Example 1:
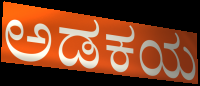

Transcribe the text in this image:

ಅಡಕಯ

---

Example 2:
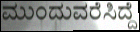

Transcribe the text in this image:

ಮುಂದುವರೆಸಿದ್ದೆ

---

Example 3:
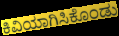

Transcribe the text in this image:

ಕಿವಿಯಾಗಿಸಿಕೊಂಡು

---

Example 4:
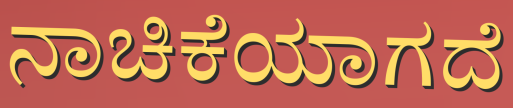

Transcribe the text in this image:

ನಾಚಿಕೆಯಾಗದೆ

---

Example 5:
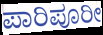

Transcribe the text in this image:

ಪಾರಿಪೂರೀ